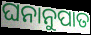
ଘନାନୁପାତ